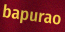
bapurao